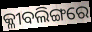
କ୍ଳୀବଲିଙ୍ଗରେ